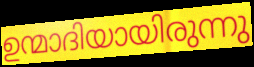
ഉന്മാദിയായിരുന്നു